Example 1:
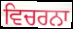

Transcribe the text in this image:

ਵਿਚਰਨਾ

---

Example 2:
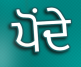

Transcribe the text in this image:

ਪੋਂਦੇ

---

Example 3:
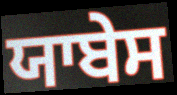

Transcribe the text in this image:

ਯਾਬੇਸ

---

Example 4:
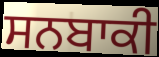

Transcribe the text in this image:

ਸਨਬਾਕੀ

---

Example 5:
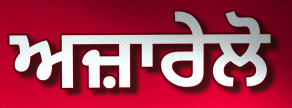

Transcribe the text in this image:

ਅਜ਼ਾਰੇਲੋ